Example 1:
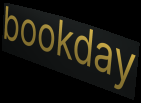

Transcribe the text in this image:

bookday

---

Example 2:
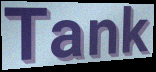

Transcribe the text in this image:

Tank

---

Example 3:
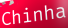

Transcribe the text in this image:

Chinha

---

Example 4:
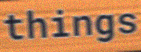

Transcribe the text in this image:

things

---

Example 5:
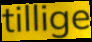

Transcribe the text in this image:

tillige